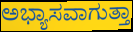
ಅಭ್ಯಾಸವಾಗುತ್ತಾ